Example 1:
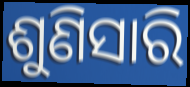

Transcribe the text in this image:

ଶୁଣିସାରି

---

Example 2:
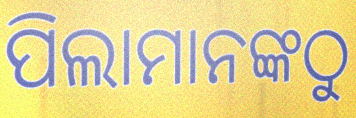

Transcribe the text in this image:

ପିଲାମାନଙ୍କଠୁ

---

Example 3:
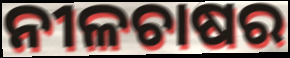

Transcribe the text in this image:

ନୀଳଚାଷର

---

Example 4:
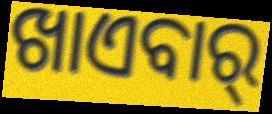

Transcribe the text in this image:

ଖାଏବାର୍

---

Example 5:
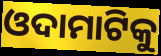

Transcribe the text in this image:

ଓଦାମାଟିକୁ